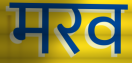
मरव